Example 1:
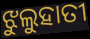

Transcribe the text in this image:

ଝୁଲୁହାତୀ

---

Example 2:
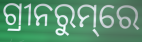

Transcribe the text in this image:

ଗ୍ରୀନରୁମ୍‌ରେ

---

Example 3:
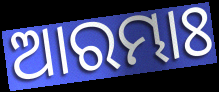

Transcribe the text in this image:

ଆରମ୍ଭାଃ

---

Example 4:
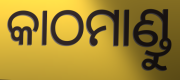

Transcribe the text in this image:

କାଠମାଣ୍ଡୁ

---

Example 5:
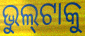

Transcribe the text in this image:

ଭୁଲ୍‍ଟାକୁ